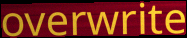
overwrite